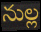
నుల్ల